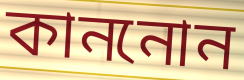
কাননোন